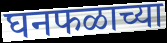
घनफळाच्या